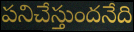
పనిచేస్తుందనేది